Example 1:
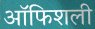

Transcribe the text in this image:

ऑफिशली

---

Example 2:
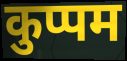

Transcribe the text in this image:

कुप्पम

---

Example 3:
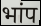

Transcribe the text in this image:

भांप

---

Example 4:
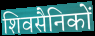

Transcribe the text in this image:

शिवसैनिकों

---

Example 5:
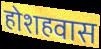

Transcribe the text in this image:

होशहवास